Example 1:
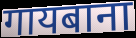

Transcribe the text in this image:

गायबाना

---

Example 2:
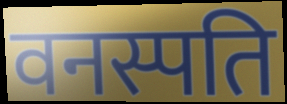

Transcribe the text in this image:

वनस्‍पति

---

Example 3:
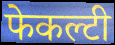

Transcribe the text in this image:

फेकल्टी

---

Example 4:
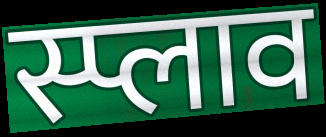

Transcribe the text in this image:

स्प्लाव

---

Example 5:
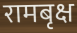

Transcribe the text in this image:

रामबृक्ष